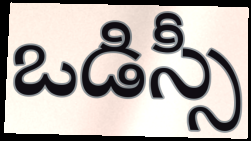
ఒడిస్సీ